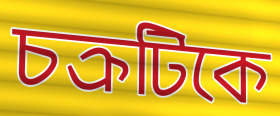
চক্রটিকে